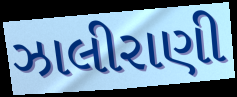
ઝાલીરાણી